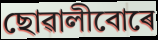
ছোৱালীবোৰে